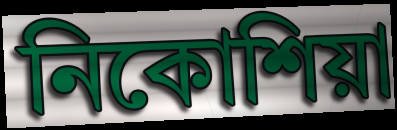
নিকোশিয়া